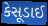
કેસૂડાઈ